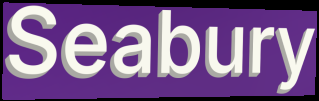
Seabury